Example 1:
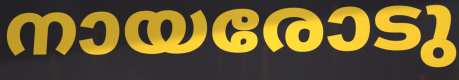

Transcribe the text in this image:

നായരോടു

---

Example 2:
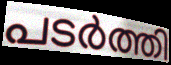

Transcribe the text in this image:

പടർത്തി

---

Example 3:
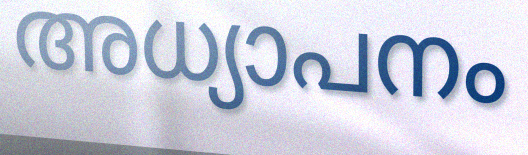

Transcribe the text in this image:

അധ്യാപനം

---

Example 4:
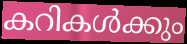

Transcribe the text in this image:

കറികൾക്കും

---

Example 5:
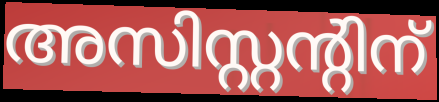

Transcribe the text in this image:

അസിസ്റ്റന്റിന്